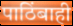
पाठिंबाही